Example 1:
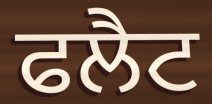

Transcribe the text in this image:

ਫਲੈਟ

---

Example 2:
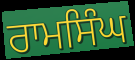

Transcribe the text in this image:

ਰਾਮਸਿੰਘ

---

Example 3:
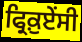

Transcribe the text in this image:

ਫ੍ਰਿਕ਼ੁਏਂਸੀ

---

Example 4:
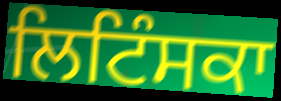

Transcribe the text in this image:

ਲਿਟਿੰਸਕਾ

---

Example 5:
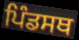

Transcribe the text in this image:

ਪਿੰਡਸਥ